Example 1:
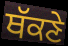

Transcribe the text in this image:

ਥੱਕਣੇ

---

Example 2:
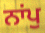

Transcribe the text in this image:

ਨਾਂਪੁ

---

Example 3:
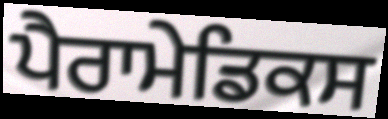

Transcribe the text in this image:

ਪੈਰਾਮੇਡਿਕਸ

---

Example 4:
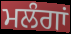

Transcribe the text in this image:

ਮਲੰਗਾਂ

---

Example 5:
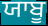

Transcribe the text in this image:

ਯਾਬੂ